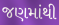
જણમાંથી